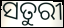
ସତୁରୀ